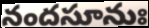
నందసూనుః